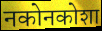
नकोनकोशा